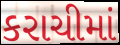
કરાચીમાં